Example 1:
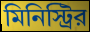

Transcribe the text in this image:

মিনিস্ট্রির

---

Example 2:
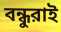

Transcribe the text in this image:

বন্ধুরাই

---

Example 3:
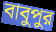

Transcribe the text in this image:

বাবুপুর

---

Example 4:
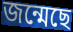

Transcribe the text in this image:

জন্মেছে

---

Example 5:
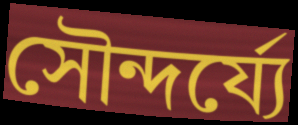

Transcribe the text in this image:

সৌন্দর্য্যে